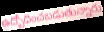
ఉద్బోధించబడుతున్నారు